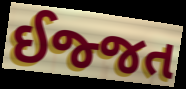
ઈજ્જત